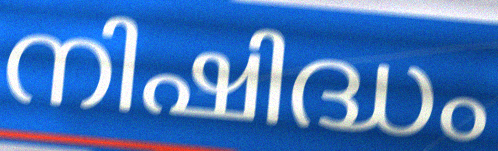
നിഷിദ്ധം